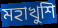
মহাখুশি